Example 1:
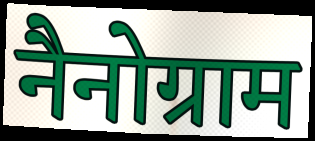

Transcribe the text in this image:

नैनोग्राम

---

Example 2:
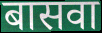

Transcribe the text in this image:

बासवा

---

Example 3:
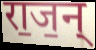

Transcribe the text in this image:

रा॒ज॒न्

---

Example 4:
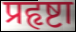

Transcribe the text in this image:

प्रहृष्टा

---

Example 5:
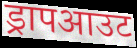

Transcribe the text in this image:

ड्रापआउट